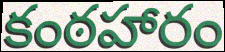
కంఠహారం